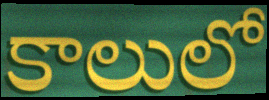
కాలులో